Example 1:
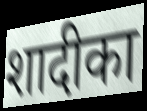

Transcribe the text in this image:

शादीका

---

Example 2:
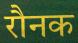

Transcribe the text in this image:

रौनक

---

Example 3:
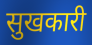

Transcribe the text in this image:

सुखकारी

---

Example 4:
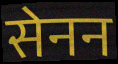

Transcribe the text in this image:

सेनन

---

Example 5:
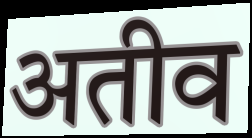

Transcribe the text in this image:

अतीव